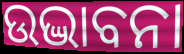
ଉଦ୍ଭାବନା